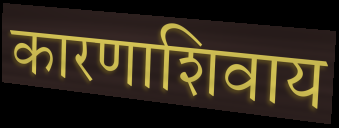
कारणाशिवाय